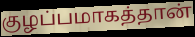
குழப்பமாகத்தான்